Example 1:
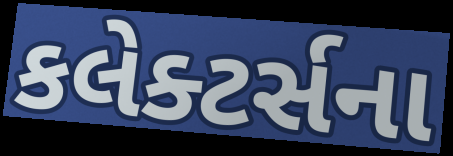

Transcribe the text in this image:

કલેક્ટર્સના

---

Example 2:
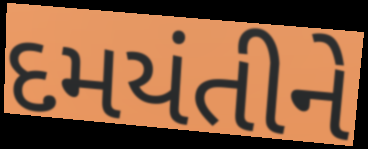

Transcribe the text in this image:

દમયંતીને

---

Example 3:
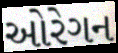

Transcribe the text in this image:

ઓરેગન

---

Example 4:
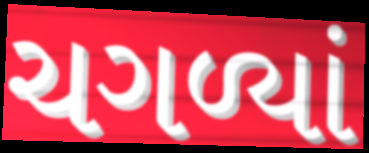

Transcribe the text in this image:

ચગળ્યાં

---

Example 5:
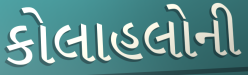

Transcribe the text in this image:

કોલાહલોની